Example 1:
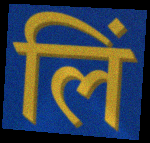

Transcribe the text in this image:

लिं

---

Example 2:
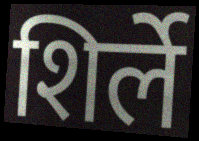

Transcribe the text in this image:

शिर्ले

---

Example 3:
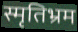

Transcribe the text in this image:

स्मृतिभ्रम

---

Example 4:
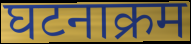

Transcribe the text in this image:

घटनाक्रम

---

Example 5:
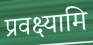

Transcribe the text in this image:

प्रवक्ष्यामि